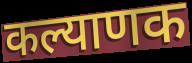
कल्याणक